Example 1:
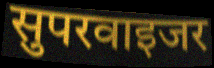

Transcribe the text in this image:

सुपरवाइजर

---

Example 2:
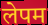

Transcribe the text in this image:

लेपम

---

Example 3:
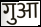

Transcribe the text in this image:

गुआ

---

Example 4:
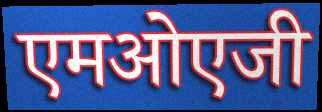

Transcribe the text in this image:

एमओएजी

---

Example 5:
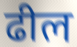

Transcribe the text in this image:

ढील